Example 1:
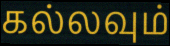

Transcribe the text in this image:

கல்லவும்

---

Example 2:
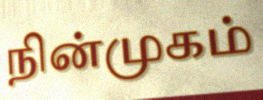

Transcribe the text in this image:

நின்முகம்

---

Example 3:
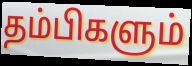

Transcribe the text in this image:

தம்பிகளும்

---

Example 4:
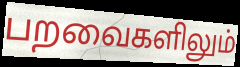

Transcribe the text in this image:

பறவைகளிலும்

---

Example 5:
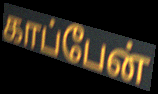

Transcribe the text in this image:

காப்பேன்